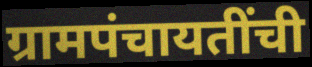
ग्रामपंचायतींची